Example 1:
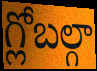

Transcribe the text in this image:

గ్లోబల్గా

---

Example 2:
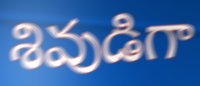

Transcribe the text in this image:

శివుడిగా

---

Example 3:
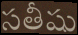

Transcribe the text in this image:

సతీషు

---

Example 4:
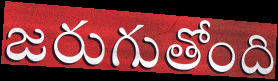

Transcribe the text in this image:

జరుగుతోంది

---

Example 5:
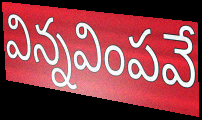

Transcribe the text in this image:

విన్నవింపవే